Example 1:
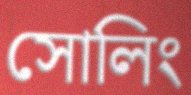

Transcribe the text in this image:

সোলিং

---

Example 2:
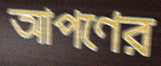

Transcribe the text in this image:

আপণের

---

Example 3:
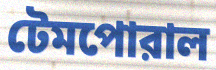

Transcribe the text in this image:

টেমপোরাল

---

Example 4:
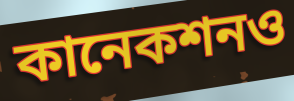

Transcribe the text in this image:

কানেকশনও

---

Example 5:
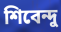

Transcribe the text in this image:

শিবেন্দু